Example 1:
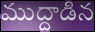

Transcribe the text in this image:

ముద్దాడిన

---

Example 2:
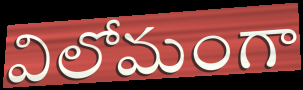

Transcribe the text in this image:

విలోమంగా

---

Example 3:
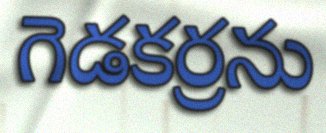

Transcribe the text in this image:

గెడకర్రను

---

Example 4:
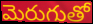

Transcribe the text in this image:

మెరుగుతో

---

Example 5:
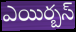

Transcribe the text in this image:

ఎయిర్బస్